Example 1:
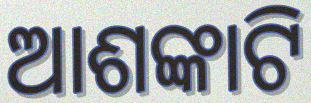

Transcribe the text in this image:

ଆଶଙ୍କାଟି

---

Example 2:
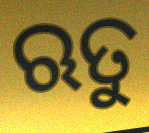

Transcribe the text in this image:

ଋତୁ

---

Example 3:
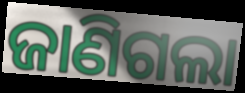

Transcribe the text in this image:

ଜାଣିଗଲା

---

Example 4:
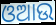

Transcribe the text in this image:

ଓଆଉ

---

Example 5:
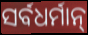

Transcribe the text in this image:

ସର୍ବଧର୍ମାନ୍